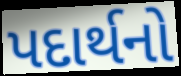
પદાર્થનો